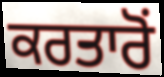
ਕਰਤਾਰੋਂ